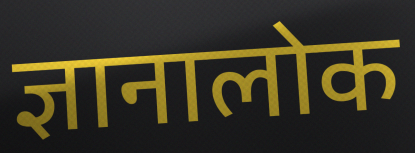
ज्ञानालोक